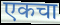
एकचा